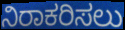
ನಿರಾಕರಿಸಲು